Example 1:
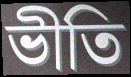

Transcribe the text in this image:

ভীতি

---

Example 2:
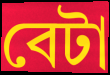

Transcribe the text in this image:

বেটা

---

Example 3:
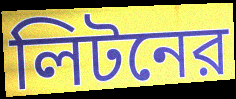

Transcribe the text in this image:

লিটনের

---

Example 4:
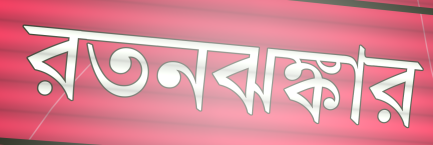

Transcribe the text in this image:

রতনঝঙ্কার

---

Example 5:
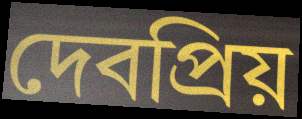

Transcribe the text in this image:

দেবপ্রিয়